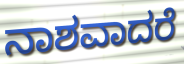
ನಾಶವಾದರೆ